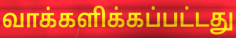
வாக்களிக்கப்பட்டது